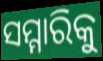
ସମ୍ମାରିକୁ